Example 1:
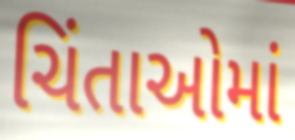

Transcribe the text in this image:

ચિંતાઓમાં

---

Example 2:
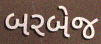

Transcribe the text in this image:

બરબેજ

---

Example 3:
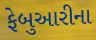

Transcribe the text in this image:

ફેબુઆરીના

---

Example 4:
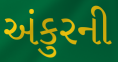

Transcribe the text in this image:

અંકુરની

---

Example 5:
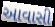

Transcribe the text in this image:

આવાસી